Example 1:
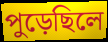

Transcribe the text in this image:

পুড়েছিলে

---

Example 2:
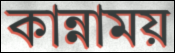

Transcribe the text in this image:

কান্নাময়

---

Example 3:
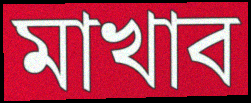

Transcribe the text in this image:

মাখাব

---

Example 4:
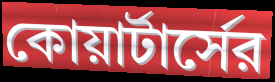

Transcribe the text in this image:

কোয়ার্টার্সের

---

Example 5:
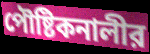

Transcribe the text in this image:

পৌষ্টিকনালীর